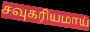
சவுகரியமாய்